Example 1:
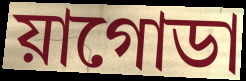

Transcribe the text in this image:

য়াগোডা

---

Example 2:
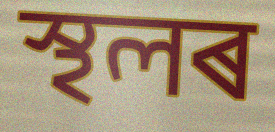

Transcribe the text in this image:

স্থলৰ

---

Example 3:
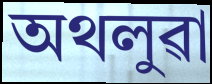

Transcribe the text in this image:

অথলুৱা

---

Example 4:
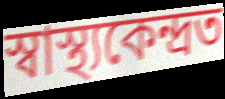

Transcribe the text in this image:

স্বাস্থ্যকেন্দ্ৰত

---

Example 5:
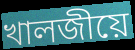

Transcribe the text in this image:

খালজীয়ে